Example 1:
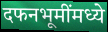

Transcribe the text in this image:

दफनभूमींमध्ये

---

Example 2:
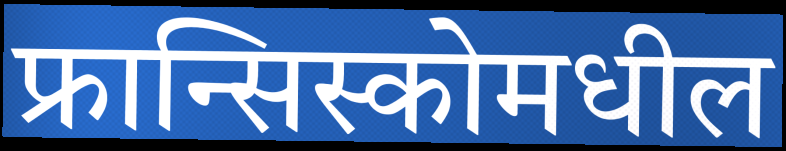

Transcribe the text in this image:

फ्रान्सिस्कोमधील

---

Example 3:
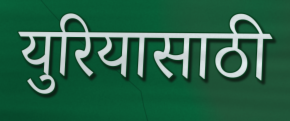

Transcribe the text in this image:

युरियासाठी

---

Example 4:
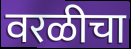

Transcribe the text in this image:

वरळीचा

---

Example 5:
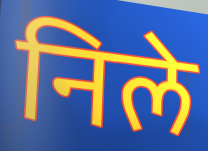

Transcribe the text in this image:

निले